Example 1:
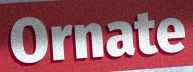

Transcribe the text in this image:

Ornate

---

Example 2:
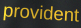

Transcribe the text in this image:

provident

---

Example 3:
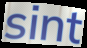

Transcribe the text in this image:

sint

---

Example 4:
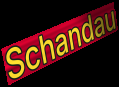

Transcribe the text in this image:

Schandau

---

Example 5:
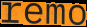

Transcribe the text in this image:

remo